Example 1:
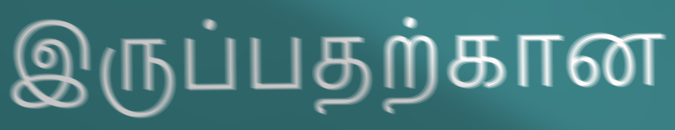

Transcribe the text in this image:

இருப்பதற்கான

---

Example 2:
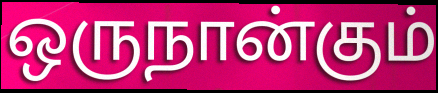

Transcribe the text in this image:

ஒருநான்கும்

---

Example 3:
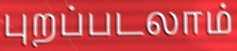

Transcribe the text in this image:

புறப்படலாம்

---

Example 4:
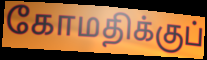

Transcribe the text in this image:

கோமதிக்குப்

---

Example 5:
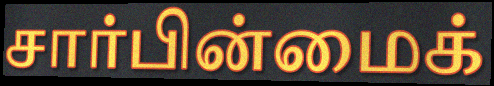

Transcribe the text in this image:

சார்பின்மைக்